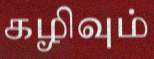
கழிவும்